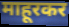
माहूरकर